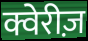
क्वेरीज़